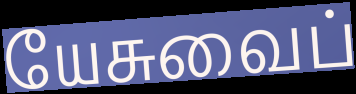
யேசுவைப்